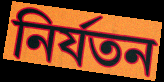
নির্যতন